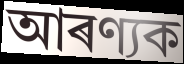
আৰণ্যক